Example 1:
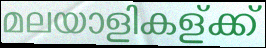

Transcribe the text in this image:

മലയാളികള്ക്ക്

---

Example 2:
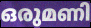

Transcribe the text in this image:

ഒരുമണി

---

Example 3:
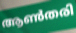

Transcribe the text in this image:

ആൺതരി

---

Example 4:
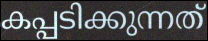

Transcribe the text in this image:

കപ്പടിക്കുന്നത്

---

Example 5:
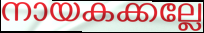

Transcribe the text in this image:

നായകക്കല്ലേ